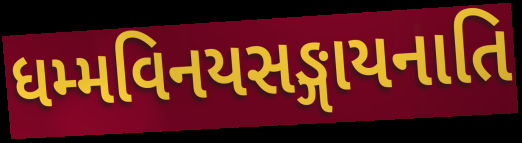
ધમ્મવિનયસઙ્ગાયનાતિ